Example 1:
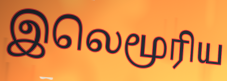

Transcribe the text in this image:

இலெமூரிய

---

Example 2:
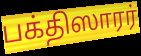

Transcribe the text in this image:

பக்திஸாரர்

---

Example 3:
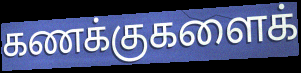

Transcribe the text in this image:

கணக்குகளைக்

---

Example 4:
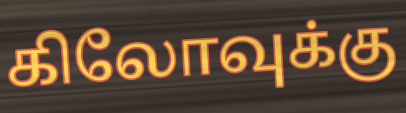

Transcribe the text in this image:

கிலோவுக்கு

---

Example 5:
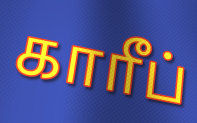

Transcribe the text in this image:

காரீப்